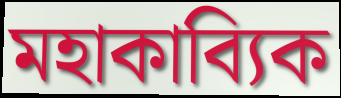
মহাকাব্যিক